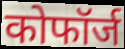
कोफॉर्ज